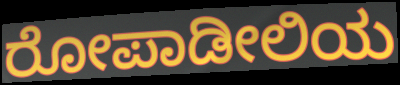
ರೋಪಾಡೀಲಿಯ